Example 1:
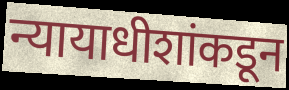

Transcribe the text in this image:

न्यायाधीशांकडून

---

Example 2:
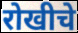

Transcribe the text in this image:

रोखीचे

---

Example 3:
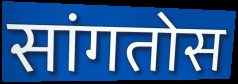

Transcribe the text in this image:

सांगतोस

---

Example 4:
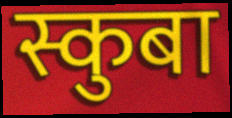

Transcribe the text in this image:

स्कुबा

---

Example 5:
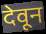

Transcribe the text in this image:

देवून